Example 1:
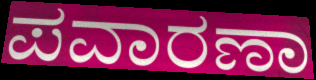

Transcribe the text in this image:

ಪವಾರಣಾ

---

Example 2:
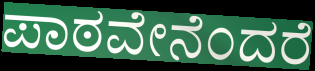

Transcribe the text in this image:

ಪಾಠವೇನೆಂದರೆ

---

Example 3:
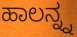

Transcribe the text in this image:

ಹಾಲನ್ನ್ನ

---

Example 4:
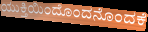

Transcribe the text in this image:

ಯುಕ್ತಿಯಿಂದೊಂದನೊಂದಕೆ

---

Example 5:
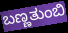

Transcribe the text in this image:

ಬಣ್ಣತುಂಬಿ